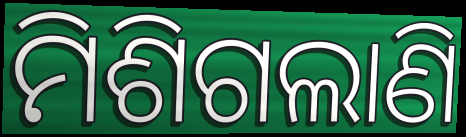
ମିଶିଗଲାଣି